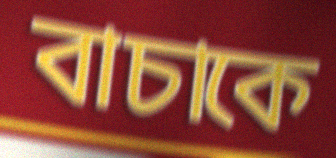
বাচাকে